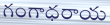
గంగాధరాయ